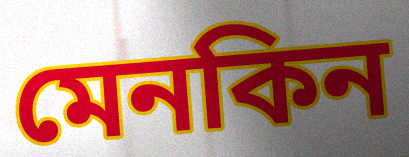
মেনকিন